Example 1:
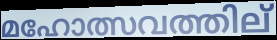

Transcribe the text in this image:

മഹോത്സവത്തില്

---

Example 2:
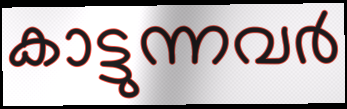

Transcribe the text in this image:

കാട്ടുന്നവർ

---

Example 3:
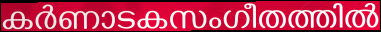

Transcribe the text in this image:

കർണാടകസംഗീതത്തിൽ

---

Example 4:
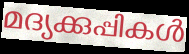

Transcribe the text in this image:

മദ്യക്കുപ്പികൾ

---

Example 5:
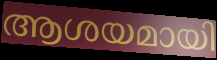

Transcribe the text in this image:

ആശയമായി